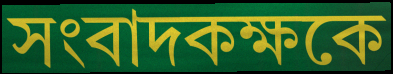
সংবাদকক্ষকে